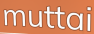
muttai